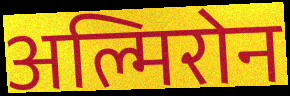
अल्मिरोन